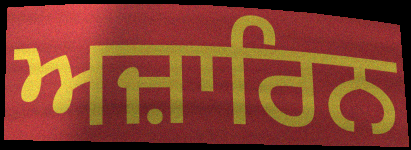
ਅਜ਼ਾਰਿਨ